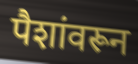
पैशांवरून